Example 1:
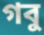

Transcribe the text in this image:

গবু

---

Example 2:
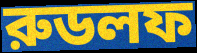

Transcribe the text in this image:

রুডলফ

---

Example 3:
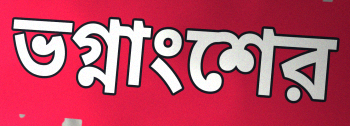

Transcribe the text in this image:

ভগ্নাংশের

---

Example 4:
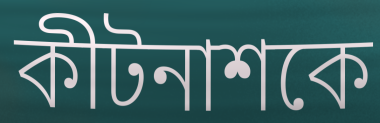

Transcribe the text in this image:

কীটনাশকে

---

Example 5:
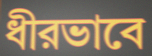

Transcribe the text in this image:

ধীরভাবে